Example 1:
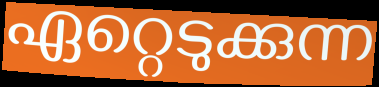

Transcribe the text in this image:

ഏറ്റെടുക്കുന്ന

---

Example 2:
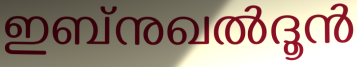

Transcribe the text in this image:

ഇബ്നുഖൽദൂൻ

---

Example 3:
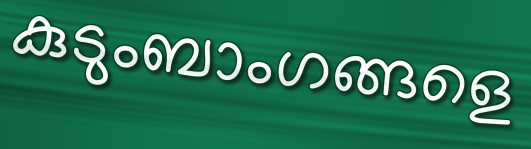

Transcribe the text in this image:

കുടുംബാംഗങ്ങളെ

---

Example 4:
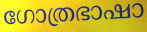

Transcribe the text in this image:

ഗോത്രഭാഷാ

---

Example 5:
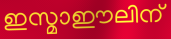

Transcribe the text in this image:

ഇസ്മാഈലിന്